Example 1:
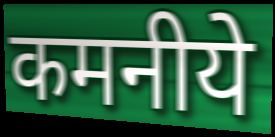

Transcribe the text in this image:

कमनीये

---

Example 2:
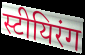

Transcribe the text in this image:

स्टीयिरंग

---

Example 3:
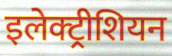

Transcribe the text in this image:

इलेक्‍ट्रीशियन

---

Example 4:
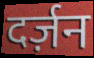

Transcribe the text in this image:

दर्ज़न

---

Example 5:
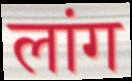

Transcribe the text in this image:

लांग